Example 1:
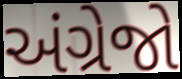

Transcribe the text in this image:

અંગ્રેજો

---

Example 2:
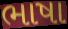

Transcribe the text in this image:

ભાષા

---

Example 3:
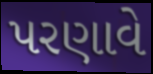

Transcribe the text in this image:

પરણાવે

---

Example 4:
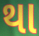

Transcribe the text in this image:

થા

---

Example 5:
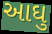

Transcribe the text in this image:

આઘુ